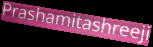
Prashamitashreeji